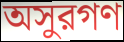
অসুরগণ